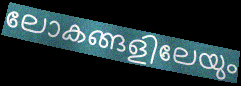
ലോകങ്ങളിലേയും